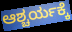
ಆಶ್ಚರ್ಯಕ್ಕೆ